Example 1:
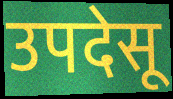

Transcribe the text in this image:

उपदेसू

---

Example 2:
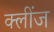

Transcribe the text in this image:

क्लींज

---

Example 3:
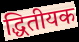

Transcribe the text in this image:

द्धितीयक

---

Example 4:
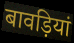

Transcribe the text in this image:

बावड़ियां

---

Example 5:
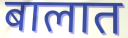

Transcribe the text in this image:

बालात